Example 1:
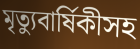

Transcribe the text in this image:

মৃত্যুবার্ষিকীসহ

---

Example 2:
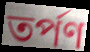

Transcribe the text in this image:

তর্পণ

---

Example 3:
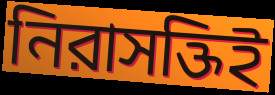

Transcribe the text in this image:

নিরাসক্তিই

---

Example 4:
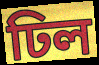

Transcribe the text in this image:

ঢিল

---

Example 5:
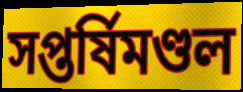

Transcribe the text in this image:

সপ্তর্ষিমণ্ডল